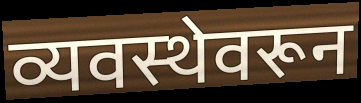
व्यवस्थेवरून